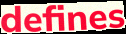
defines